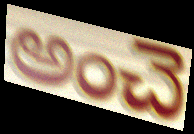
అంచె